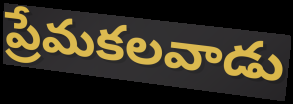
ప్రేమకలవాడు